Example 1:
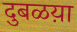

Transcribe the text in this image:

दुबळय़ा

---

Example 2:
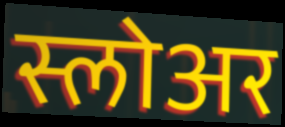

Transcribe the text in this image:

स्लोअर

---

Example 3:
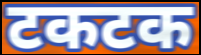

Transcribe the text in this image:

टकटक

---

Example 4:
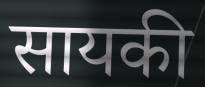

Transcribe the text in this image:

सायकी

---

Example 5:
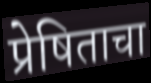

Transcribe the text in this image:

प्रेषिताचा